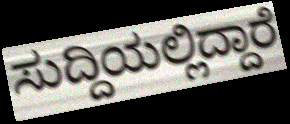
ಸುದ್ದಿಯಲ್ಲಿದ್ದಾರೆ